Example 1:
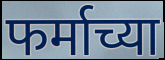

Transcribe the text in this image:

फर्माच्या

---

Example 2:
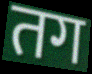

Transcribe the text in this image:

तग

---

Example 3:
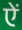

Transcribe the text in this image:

ऐं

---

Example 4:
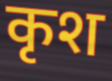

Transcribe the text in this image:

कृश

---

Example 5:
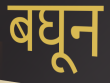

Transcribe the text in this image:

बघून